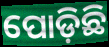
ପୋଡ଼ିଛି